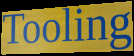
Tooling